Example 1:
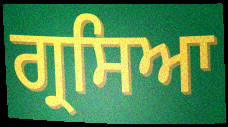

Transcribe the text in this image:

ਗ੍ਰਸਿਆ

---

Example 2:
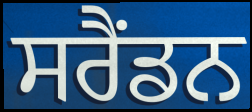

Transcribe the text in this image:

ਸਰੈਂਡਨ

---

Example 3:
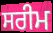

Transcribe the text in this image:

ਸਰੀਮ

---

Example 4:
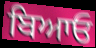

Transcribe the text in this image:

ਬਿਆਓ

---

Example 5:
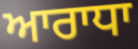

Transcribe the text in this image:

ਆਰਾਧਾ